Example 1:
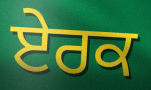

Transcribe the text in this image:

ਏਰਕ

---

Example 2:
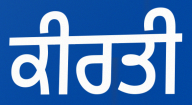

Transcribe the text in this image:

ਕੀਰਤੀ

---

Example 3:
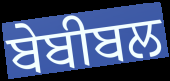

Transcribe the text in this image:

ਬੇਬੀਬਲ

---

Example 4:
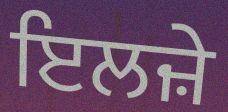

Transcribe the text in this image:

ਇਲਜ਼ੇ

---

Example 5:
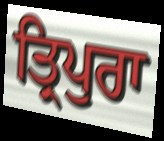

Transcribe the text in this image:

ਤ੍ਰਿਪੁਰਾ